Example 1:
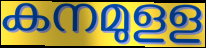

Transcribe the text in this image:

കനമുളള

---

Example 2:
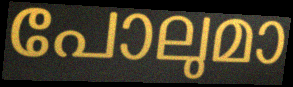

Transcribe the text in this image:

പോലുമാ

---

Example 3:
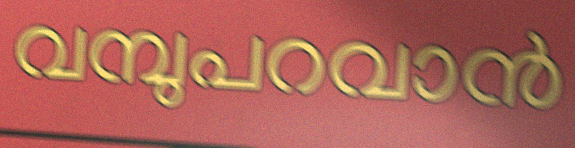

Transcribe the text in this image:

വമ്പുപറവാൻ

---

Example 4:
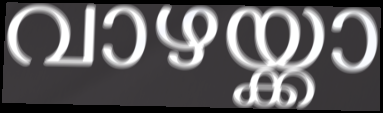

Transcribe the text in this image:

വാഴയ്ക്കാ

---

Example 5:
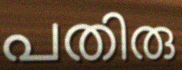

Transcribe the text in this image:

പതിരു